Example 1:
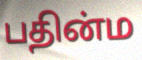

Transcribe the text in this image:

பதின்ம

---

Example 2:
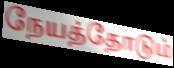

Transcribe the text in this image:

நேயத்தோடும்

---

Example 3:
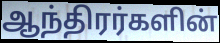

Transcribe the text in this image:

ஆந்திரர்களின்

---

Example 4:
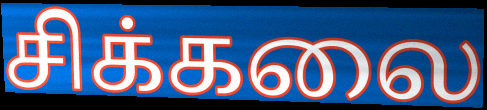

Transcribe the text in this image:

சிக்கலை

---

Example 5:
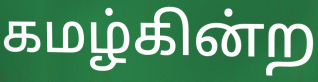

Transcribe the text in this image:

கமழ்கின்ற